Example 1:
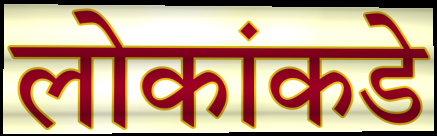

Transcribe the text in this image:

लोकांकडे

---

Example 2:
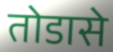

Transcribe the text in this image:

तोडासे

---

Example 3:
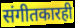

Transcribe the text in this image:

संगीतकारही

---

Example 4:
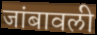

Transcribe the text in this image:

जांबावली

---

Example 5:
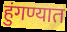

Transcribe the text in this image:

हुंगण्यात